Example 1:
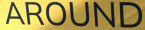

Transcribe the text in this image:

AROUND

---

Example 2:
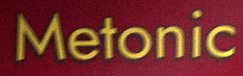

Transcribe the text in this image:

Metonic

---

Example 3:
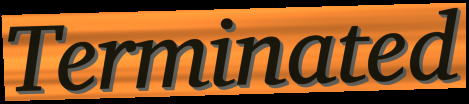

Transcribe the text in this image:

Terminated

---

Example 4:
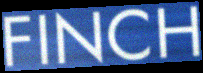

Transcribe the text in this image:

FINCH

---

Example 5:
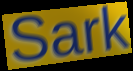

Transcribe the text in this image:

Sark